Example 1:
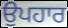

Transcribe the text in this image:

ਉਪਹਾਰ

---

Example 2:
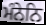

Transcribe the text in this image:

ਮੰਨੇਨਿ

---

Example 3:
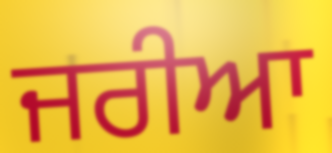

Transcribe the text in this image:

ਜਰੀਆ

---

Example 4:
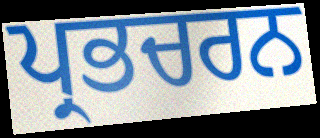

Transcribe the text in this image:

ਪ੍ਰਭਚਰਨ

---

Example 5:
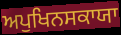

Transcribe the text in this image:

ਅਪੁਖਿਨਸਕਾਯਾ